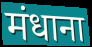
मंधाना